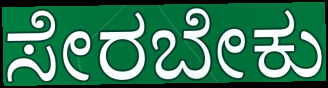
ಸೇರಬೇಕು